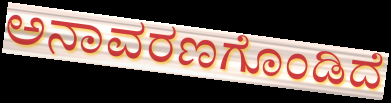
ಅನಾವರಣಗೊಂಡಿದೆ